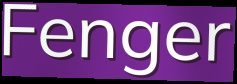
Fenger